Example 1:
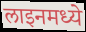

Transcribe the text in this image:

लाइनमध्ये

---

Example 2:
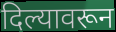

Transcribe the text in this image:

दिल्यावरून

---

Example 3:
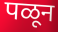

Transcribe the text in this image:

पळून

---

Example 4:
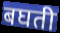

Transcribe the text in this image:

बघती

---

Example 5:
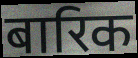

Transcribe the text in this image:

बारिक